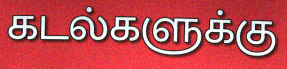
கடல்களுக்கு